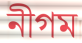
নীগম